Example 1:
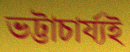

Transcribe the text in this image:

ভট্টাচাৰ্য্যই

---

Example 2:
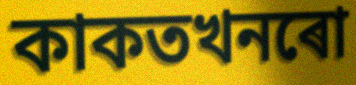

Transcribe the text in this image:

কাকতখনৰো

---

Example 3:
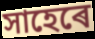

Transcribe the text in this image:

সাহেৰে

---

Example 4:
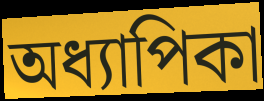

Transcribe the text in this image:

অধ্যাপিকা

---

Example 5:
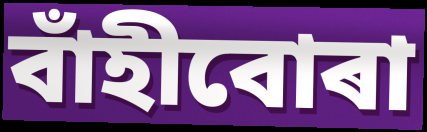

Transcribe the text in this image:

বাঁহীবোৰা